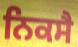
ਨਿਕਸੈ